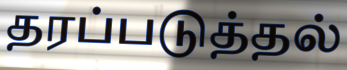
தரப்படுத்தல்